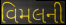
વિમલની